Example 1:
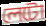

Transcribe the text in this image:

লেটো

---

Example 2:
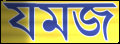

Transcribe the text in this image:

যমজ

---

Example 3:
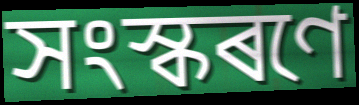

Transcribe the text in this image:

সংস্কৰণে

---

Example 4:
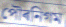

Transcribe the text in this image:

পৌৰনিগম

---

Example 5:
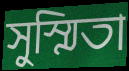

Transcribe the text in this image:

সুস্মিতা